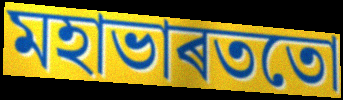
মহাভাৰততো